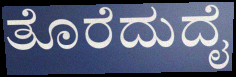
ತೊರೆದುದೈ